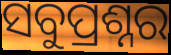
ସବୁପ୍ରଶ୍ନର